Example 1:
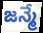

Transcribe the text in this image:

జన్మే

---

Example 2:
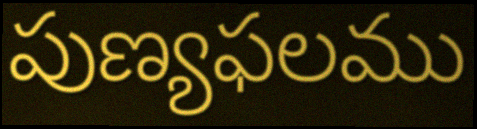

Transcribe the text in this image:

పుణ్యఫలము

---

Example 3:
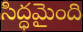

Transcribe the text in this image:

సిద్ధమైంది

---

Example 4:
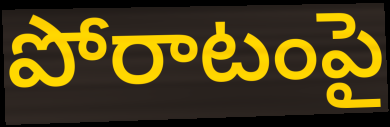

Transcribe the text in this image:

పోరాటంపై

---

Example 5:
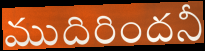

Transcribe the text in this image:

ముదిరిందనీ